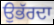
ਉਭੱਰਦਾ